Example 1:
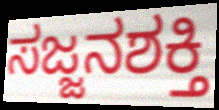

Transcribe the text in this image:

ಸಜ್ಜನಶಕ್ತಿ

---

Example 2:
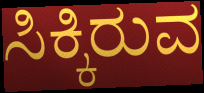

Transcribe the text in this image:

ಸಿಕ್ಕಿರುವ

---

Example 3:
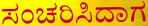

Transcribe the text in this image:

ಸಂಚರಿಸಿದಾಗ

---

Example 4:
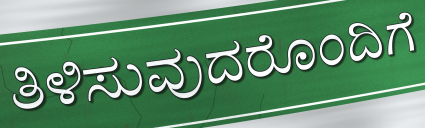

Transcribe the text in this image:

ತಿಳಿಸುವುದರೊಂದಿಗೆ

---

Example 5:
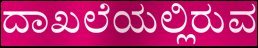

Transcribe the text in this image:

ದಾಖಲೆಯಲ್ಲಿರುವ